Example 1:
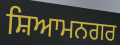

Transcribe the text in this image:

ਸ਼ਿਆਮਨਗਰ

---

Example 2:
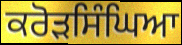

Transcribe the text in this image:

ਕਰੋੜਸਿੰਘਿਆ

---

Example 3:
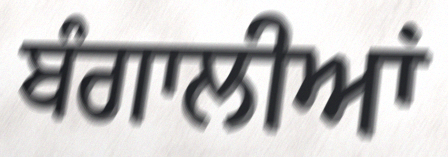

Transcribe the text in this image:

ਬੰਗਾਲੀਆਂ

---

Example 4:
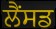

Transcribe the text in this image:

ਲੈਂਸਡ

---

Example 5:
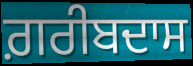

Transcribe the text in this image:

ਗ਼ਰੀਬਦਾਸ